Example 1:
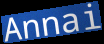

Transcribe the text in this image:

Annai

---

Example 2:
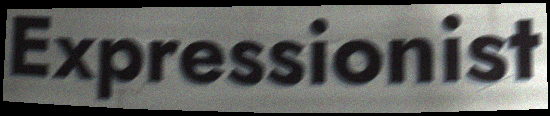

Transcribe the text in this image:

Expressionist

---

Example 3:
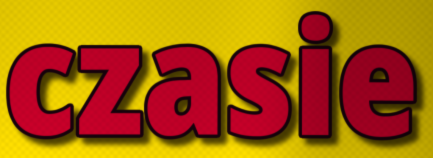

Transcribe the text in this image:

czasie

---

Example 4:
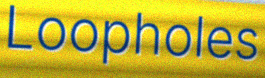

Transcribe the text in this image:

Loopholes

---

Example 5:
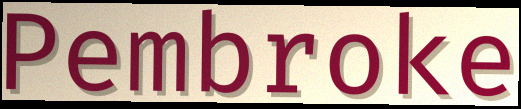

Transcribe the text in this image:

Pembroke